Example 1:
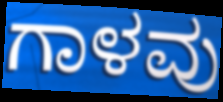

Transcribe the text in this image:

ಗಾಳವು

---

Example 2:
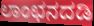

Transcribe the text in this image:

ಲಾಂಛನದಡಿ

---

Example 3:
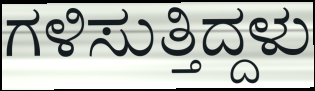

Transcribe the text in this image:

ಗಳಿಸುತ್ತಿದ್ದಳು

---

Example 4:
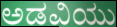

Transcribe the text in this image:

ಅಡವಿಯು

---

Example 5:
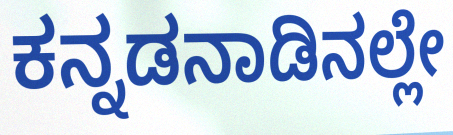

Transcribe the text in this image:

ಕನ್ನಡನಾಡಿನಲ್ಲೇ